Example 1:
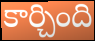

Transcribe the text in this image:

కార్చింది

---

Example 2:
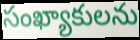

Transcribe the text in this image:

సంఖ్యాకులను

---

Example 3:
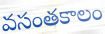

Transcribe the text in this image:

వసంతకాలం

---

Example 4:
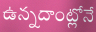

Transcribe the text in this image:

ఉన్నదాంట్లోనే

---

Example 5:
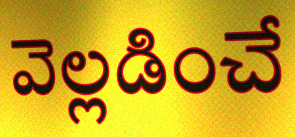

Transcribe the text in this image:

వెల్లడించే